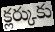
క్లర్కుకు